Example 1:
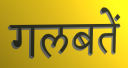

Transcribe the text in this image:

गलबतें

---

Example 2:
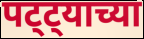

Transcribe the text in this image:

पट्ट्याच्या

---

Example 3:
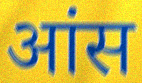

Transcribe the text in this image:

आंस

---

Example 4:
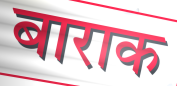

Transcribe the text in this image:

बाराक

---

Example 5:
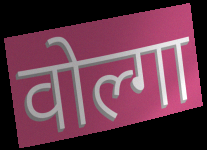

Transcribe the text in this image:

वोल्गा